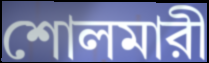
শোলমারী